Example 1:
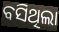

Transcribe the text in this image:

ବସିଥିଲା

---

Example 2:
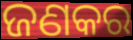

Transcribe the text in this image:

ଜଣକର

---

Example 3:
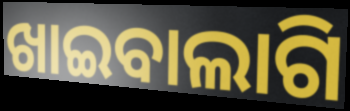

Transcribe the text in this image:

ଖାଇବାଲାଗି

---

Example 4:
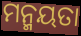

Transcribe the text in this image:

ମନ୍ମୟତା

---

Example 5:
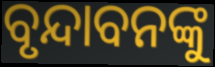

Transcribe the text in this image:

ବୃନ୍ଦାବନଙ୍କୁ